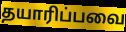
தயாரிப்பவை